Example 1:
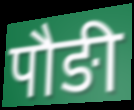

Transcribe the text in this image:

पौङी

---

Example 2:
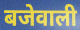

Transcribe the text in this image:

बजेवाली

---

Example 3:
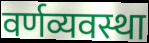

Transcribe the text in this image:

वर्णव्यवस्था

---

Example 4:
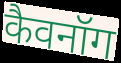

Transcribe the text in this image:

कैवनॉग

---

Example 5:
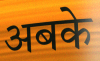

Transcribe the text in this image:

अबके